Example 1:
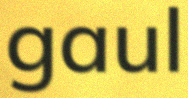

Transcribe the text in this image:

gaul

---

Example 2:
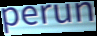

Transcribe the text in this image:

perun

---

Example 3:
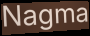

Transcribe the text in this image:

Nagma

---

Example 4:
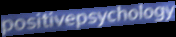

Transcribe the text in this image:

positivepsychology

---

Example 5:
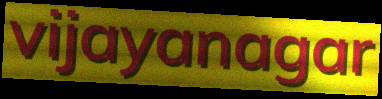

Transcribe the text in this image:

vijayanagar